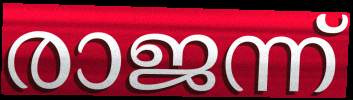
രാജന്ന്